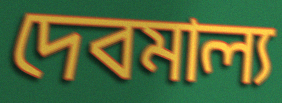
দেবমাল্য